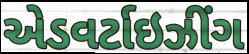
એડવર્ટાઇઝીંગ